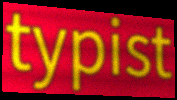
typist